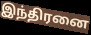
இந்திரனை